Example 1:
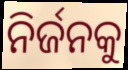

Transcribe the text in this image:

ନିର୍ଜନକୁ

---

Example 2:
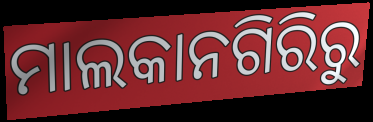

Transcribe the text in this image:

ମାଲକାନଗିରିରୁ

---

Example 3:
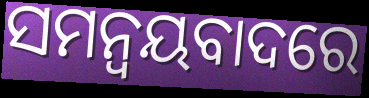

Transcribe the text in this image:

ସମନ୍ୱୟବାଦରେ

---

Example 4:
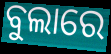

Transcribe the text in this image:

ବୁଲାରେ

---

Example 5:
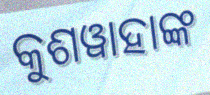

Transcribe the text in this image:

କୁଶୱାହାଙ୍କ